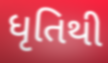
ધૃતિથી